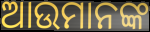
ଆଉମାନଙ୍କ